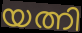
യത്നി